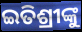
ଇତିଶ୍ରୀଙ୍କୁ